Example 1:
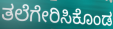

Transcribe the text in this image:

ತಲೆಗೇರಿಸಿಕೊಂಡ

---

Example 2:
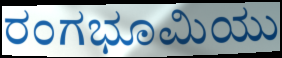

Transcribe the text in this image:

ರಂಗಭೂಮಿಯು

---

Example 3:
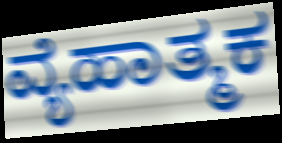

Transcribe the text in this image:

ವ್ಯೆಹಾತ್ಮಕ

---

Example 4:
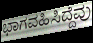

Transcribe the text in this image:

ಭಾಗವಹಿಸಿದ್ದೆವು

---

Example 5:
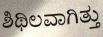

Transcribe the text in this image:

ಶಿಥಿಲವಾಗಿತ್ತು